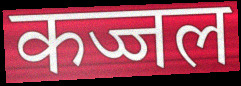
कज्जल